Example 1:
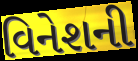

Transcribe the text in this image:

વિનેશની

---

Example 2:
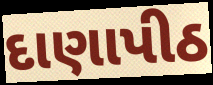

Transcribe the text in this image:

દાણાપીઠ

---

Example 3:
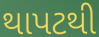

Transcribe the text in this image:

થાપટથી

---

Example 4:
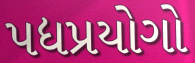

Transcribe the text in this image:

પદ્યપ્રયોગો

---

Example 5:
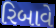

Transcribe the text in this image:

રિબાવે